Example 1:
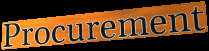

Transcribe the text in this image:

Procurement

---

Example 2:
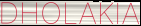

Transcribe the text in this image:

DHOLAKIA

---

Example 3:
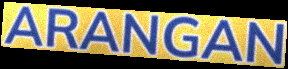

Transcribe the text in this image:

ARANGAN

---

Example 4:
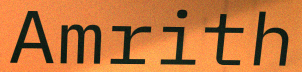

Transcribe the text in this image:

Amrith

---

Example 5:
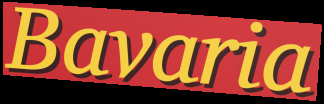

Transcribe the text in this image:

Bavaria